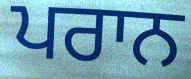
ਪਰਾਨ